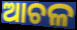
ଆଚଳ